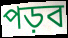
পড়ব